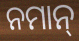
ନମାନ୍